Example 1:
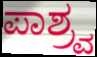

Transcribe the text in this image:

ಪಾಶ್ರ್ವ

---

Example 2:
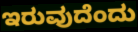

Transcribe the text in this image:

ಇರುವುದೆಂದು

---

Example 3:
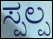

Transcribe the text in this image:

ಸ್ಪಲ್ಪ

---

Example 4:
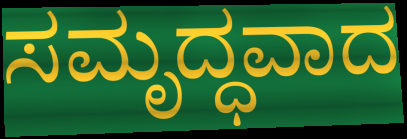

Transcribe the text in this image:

ಸಮೃದ್ಧವಾದ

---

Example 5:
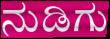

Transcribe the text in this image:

ನುಡಿಗು